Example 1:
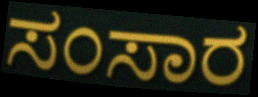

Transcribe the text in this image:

ಸಂಸಾರ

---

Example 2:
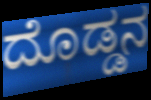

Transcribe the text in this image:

ದೊಡ್ಡನ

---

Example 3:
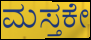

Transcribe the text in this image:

ಮಸ್ತಕೇ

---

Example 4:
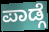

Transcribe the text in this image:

ಪಾಡ್ಗೆ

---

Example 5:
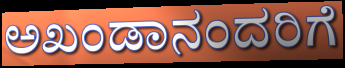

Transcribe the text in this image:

ಅಖಂಡಾನಂದರಿಗೆ